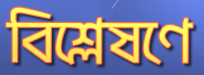
বিশ্লেষণে